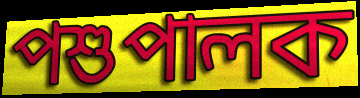
পশুপালক